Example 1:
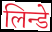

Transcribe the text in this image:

लिन्डे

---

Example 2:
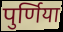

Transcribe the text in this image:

पुर्णिया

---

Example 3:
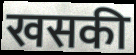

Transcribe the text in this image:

खसकी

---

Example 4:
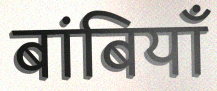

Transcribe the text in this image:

बांबियाँ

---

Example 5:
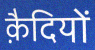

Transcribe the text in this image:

क़ैदियों